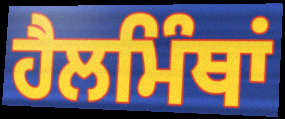
ਹੈਲਮਿੰਥਾਂ